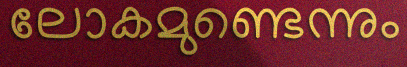
ലോകമുണ്ടെന്നും